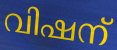
വിഷന്